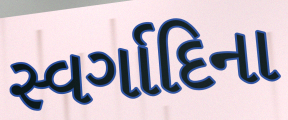
સ્વર્ગાદિના